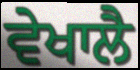
ਵੇਖਾਲੈ